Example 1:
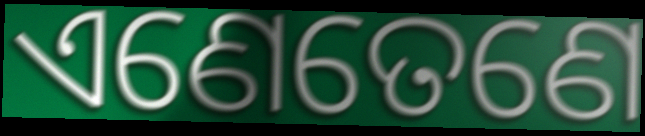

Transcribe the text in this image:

ଏଣେତେଣେ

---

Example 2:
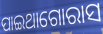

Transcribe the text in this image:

ପାଇଥାଗୋରାସ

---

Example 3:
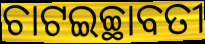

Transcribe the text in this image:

ଚାଟଇଚ୍ଛାବତୀ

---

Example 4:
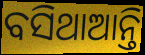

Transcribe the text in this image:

ବସିଥାଆନ୍ତି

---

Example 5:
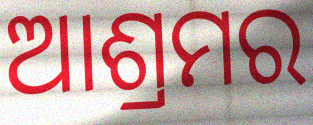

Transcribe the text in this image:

ଆଶ୍ରମର